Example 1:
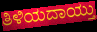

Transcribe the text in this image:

ತಿಳಿಯದಾಯ್ತು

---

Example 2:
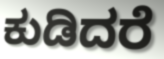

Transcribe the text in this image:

ಕುಡಿದರೆ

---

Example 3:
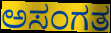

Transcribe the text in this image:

ಅಸಂಗತ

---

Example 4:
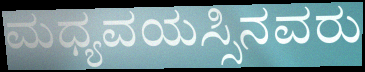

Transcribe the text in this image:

ಮಧ್ಯವಯಸ್ಸಿನವರು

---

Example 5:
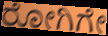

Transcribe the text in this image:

ರೋಗಿಗೇ